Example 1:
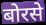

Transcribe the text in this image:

बोरसे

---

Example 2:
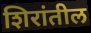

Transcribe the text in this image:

शिरांतील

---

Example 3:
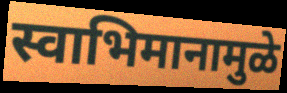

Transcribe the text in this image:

स्वाभिमानामुळे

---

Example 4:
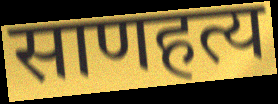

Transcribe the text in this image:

साणहत्य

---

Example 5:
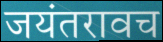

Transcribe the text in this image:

जयंतरावच